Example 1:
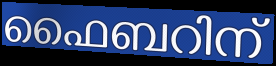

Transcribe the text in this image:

ഫൈബറിന്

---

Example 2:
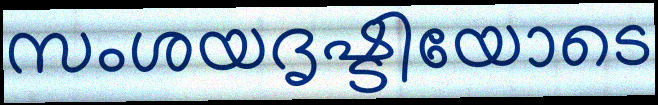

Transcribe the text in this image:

സംശയദൃഷ്ടിയോടെ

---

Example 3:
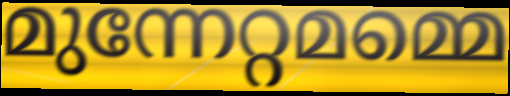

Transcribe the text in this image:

മുന്നേറ്റമമ്മെ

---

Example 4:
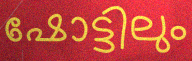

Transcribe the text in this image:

ഷോട്ടിലും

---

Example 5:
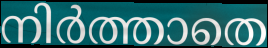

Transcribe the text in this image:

നിർത്താതെ